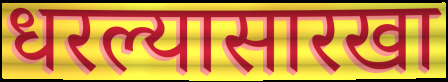
धरल्यासारखा